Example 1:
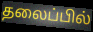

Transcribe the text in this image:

தலைப்பில்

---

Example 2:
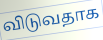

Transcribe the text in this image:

விடுவதாக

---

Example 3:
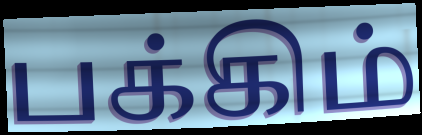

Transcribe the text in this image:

பக்கிம்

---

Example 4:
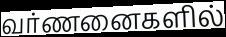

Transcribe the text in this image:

வர்ணனைகளில்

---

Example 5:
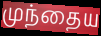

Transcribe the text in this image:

முந்தைய